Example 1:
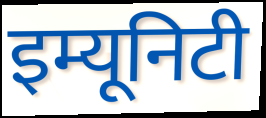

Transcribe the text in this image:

इम्यूनिटी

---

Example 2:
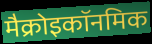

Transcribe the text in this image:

मैक्रोइकॉनमिक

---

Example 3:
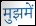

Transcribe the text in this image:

मुझमें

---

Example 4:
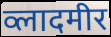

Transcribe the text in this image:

व्लादमीर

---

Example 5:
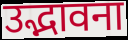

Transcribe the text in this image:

उद्भावना